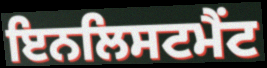
ਇਨਲਿਸਟਮੈਂਟ